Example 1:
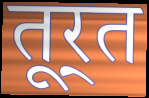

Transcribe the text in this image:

तूर्त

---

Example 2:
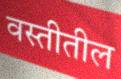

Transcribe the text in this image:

वस्तीतील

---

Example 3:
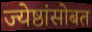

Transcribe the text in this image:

ज्येष्ठांसोबत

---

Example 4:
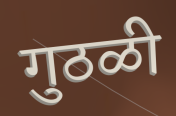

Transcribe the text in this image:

गुठळी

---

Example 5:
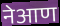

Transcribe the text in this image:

नेआण